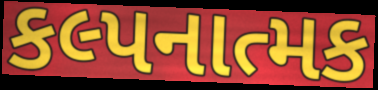
કલ્પનાત્મક